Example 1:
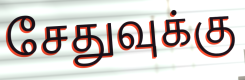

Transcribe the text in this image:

சேதுவுக்கு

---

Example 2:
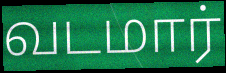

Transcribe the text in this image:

வடமார்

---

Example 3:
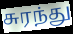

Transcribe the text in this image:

சுரந்து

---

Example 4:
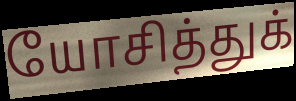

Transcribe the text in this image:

யோசித்துக்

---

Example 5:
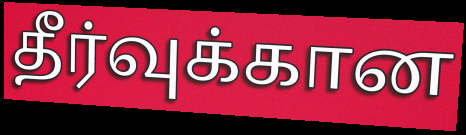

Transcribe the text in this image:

தீர்வுக்கான